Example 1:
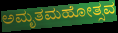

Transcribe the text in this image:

ಅಮೃತಮಹೋತ್ಸವ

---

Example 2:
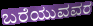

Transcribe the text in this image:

ಬರೆಯುವವರ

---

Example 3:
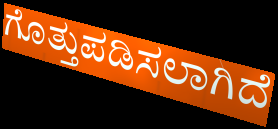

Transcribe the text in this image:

ಗೊತ್ತುಪಡಿಸಲಾಗಿದೆ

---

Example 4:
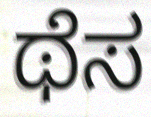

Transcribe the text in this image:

ಥೆಸ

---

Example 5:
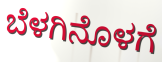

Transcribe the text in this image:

ಬೆಳಗಿನೊಳಗೆ